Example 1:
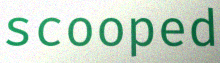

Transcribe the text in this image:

scooped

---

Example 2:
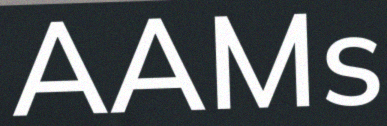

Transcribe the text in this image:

AAMs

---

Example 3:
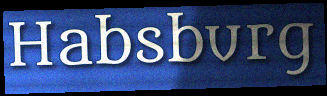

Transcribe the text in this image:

Habsburg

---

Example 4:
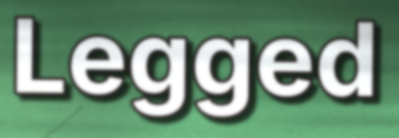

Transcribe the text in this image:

Legged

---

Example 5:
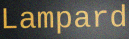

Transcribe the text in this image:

Lampard